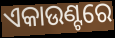
ଏକାଉଣ୍ଟରେ